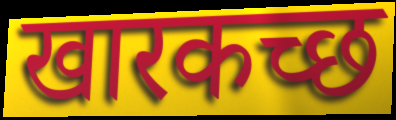
खारकच्छ